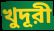
খুদূরী